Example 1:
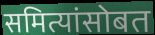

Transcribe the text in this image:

समित्यांसोबत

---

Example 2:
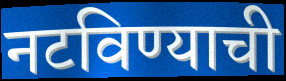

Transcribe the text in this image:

नटविण्याची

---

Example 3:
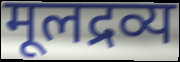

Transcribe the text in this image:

मूलद्रव्य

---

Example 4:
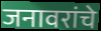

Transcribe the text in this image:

जनावरांचे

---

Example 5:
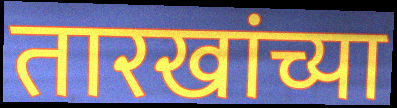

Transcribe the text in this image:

तारखांच्या